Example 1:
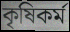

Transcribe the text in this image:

কৃষিকর্ম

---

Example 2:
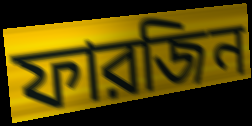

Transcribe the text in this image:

ফারজিন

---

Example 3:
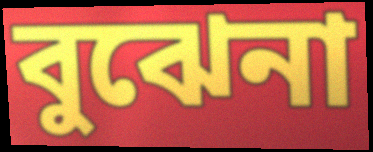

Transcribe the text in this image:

বুঝেনা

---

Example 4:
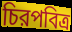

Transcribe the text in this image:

চিরপবিত্র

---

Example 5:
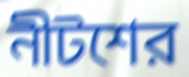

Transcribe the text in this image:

নীটশের